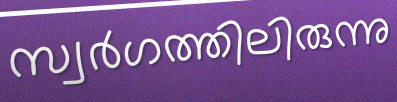
സ്വർഗത്തിലിരുന്നു